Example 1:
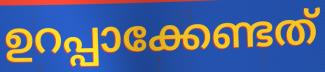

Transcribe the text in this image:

ഉറപ്പാക്കേണ്ടത്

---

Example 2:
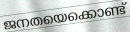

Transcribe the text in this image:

ജനതയെക്കൊണ്ട്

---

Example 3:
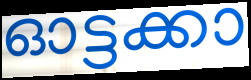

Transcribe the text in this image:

ഓട്ടക്കാ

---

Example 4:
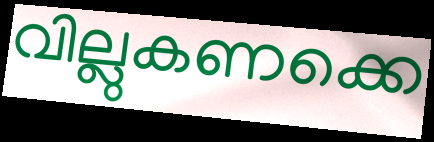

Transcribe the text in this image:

വില്ലുകണക്കെ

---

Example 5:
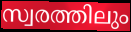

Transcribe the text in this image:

സ്വരത്തിലും